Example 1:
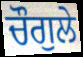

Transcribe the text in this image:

ਚੌਗੁਲੇ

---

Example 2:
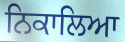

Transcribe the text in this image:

ਨਿਕਾਲਿਆ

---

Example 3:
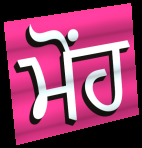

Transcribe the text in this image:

ਮੋਂਹ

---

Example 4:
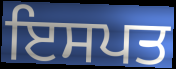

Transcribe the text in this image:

ਇਸਪਤ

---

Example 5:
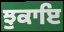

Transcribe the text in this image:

ਝੁਕਾਇ